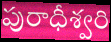
పురాధీశ్వరి